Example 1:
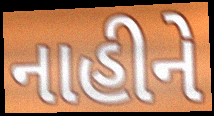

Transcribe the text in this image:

નાહીને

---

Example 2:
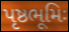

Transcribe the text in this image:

પૃષ્ઠભૂમિઃ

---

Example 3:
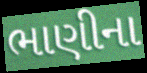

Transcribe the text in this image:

ભાણીના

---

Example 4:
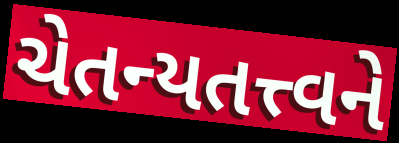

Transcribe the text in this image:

ચેતન્યતત્ત્વને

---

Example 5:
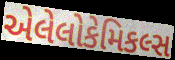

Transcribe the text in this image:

એલેલોકેમિકલ્સ